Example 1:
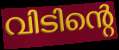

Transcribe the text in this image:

വിടിന്റെ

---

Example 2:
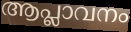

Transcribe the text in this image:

ആപ്ലാവനം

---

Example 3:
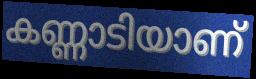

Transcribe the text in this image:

കണ്ണാടിയാണ്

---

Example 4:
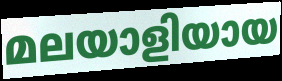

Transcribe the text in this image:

മലയാളിയായ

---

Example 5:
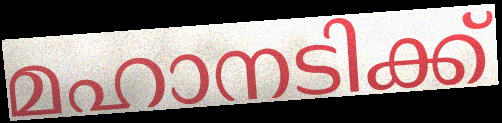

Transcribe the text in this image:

മഹാനടിക്ക്